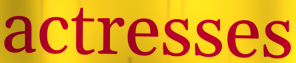
actresses